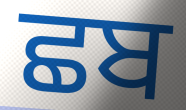
ਛਬ